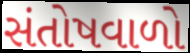
સંતોષવાળો